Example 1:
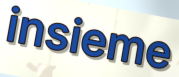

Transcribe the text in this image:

insieme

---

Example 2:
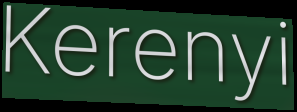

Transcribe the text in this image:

Kerenyi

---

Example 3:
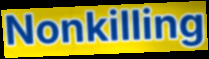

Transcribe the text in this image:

Nonkilling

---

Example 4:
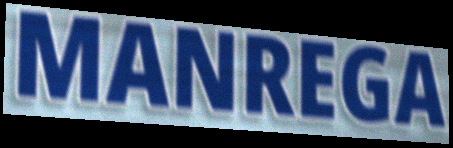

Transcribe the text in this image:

MANREGA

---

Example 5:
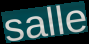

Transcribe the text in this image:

salle